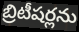
బ్రిటీషర్లను